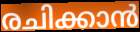
രചിക്കാൻ